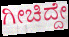
ಗೀಚಿದ್ದೇ